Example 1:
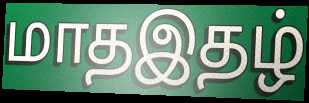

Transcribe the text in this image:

மாதஇதழ்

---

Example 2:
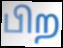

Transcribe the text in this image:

பிற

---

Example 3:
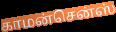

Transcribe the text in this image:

காமன்சென்ஸ்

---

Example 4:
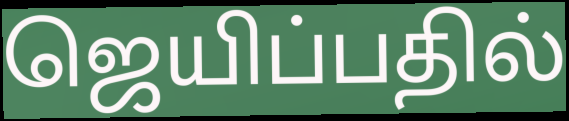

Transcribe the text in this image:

ஜெயிப்பதில்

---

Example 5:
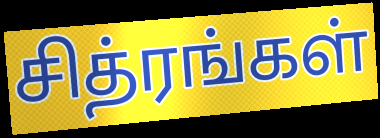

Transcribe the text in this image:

சித்ரங்கள்